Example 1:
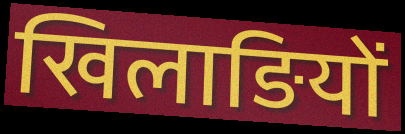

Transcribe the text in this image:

खिलाङियों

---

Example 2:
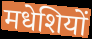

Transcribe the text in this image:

मधेशियों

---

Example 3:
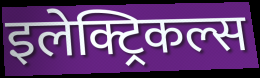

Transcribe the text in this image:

इलेक्ट्रिकल्‍स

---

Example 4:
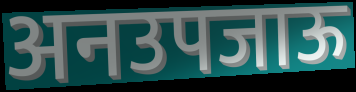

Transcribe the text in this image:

अनउपजाऊ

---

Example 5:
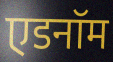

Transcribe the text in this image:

एडनॉम